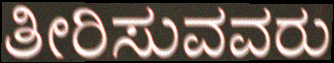
ತೀರಿಸುವವರು